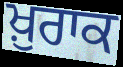
ਖ਼ੁਰਾਕ